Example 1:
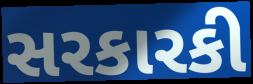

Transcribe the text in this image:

સરકારકી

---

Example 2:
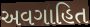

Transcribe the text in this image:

અવગાહિત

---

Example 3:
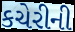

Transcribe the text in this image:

કચેરીની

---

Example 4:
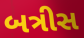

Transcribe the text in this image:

બત્રીસ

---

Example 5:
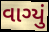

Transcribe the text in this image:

વાગ્યું